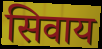
सिवाय